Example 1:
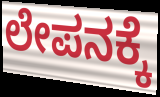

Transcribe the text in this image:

ಲೇಪನಕ್ಕೆ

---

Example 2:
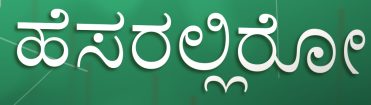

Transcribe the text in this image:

ಹೆಸರಲ್ಲಿರೋ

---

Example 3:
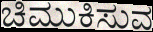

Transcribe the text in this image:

ಚಿಮುಕಿಸುವ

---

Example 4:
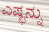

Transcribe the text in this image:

ಎಷ್ಟನ್ನು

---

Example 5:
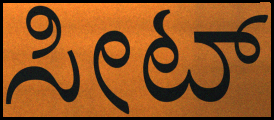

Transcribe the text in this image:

ಸೀಟ್